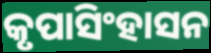
କୃପାସିଂହାସନ